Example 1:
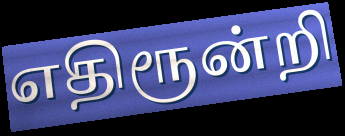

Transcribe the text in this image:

எதிரூன்றி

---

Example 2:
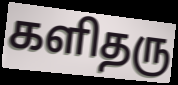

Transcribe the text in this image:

களிதரு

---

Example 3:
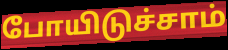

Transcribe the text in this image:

போயிடுச்சாம்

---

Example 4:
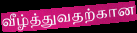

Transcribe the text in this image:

வீழ்த்துவதற்கான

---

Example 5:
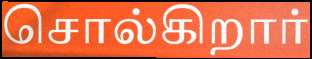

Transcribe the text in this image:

சொல்கிறார்